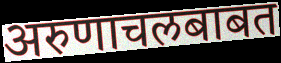
अरुणाचलबाबत